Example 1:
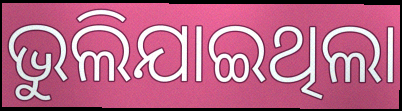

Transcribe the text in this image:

ଭୁଲିଯାଇଥିଲା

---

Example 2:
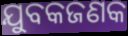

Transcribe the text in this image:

ଯୁବକଜଣକ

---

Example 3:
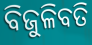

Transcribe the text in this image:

ବିଜୁଳିବତି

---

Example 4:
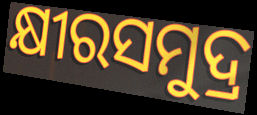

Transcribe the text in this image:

କ୍ଷୀରସମୁଦ୍ର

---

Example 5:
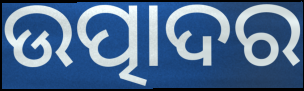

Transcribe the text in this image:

ଉତ୍ପାଦର